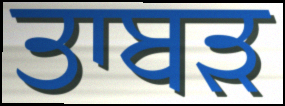
ਤਾਬੜ